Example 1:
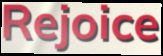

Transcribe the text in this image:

Rejoice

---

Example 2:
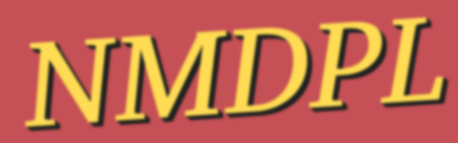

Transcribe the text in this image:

NMDPL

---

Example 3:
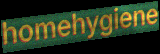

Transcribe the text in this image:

homehygiene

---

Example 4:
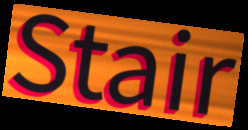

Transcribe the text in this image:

Stair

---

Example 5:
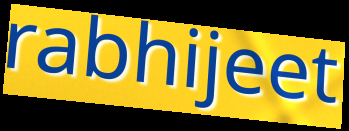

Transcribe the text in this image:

rabhijeet